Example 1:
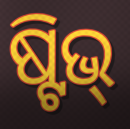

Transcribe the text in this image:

ଷ୍ଟିଭ୍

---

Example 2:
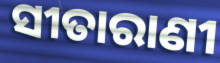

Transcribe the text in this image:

ସୀତାରାଣୀ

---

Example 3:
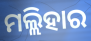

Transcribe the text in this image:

ମଲ୍ଲିହାର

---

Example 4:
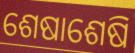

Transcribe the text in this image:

ଶେଷାଶେଷି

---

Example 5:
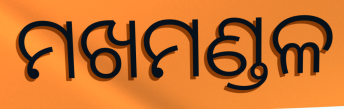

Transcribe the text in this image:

ମଖମଣ୍ଡଳ